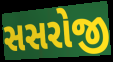
સસરોજી